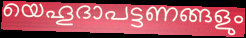
യെഹൂദാപട്ടണങ്ങളും